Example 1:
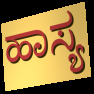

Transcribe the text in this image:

ಹಾಸ್ಯ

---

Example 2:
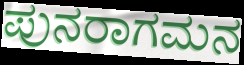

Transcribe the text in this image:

ಪುನರಾಗಮನ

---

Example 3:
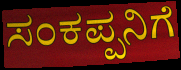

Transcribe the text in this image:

ಸಂಕಪ್ಪನಿಗೆ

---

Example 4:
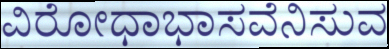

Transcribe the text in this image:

ವಿರೋಧಾಭಾಸವೆನಿಸುವ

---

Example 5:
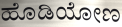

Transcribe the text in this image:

ಹೊಡಿಯೋಣ